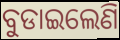
ବୁଡାଇଲେଣି